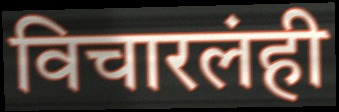
विचारलंही